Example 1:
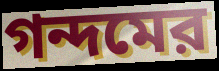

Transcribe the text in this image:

গন্দমের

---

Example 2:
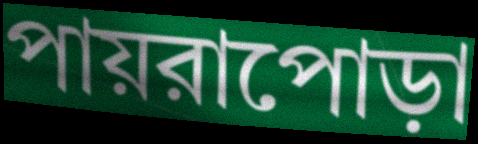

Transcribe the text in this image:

পায়রাপোড়া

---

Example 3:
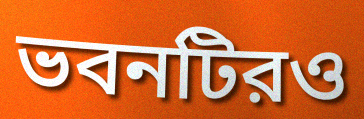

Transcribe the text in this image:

ভবনটিরও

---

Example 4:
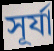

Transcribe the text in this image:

সূর্যা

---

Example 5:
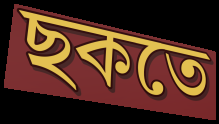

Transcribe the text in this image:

ছকতে